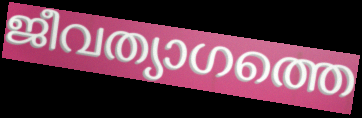
ജീവത്യാഗത്തെ